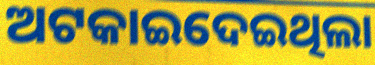
ଅଟକାଇଦେଇଥିଲା